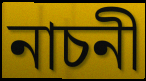
নাচনী